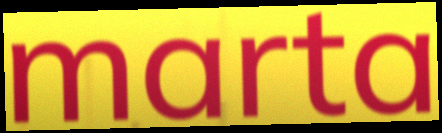
marta